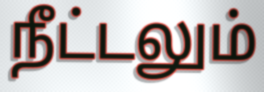
நீட்டலும்